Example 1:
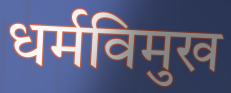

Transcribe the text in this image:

धर्मविमुख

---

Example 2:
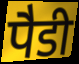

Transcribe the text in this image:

पैडी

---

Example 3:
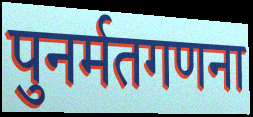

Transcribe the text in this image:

पुनर्मतगणना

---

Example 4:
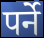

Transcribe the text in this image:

पर्ने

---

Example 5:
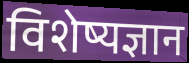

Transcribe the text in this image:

विशेष्यज्ञान